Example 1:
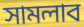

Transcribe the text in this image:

সামলাব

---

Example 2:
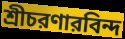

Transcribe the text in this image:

শ্রীচরণারবিন্দ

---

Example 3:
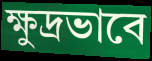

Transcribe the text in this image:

ক্ষুদ্রভাবে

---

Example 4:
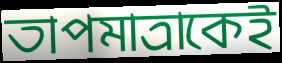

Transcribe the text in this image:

তাপমাত্রাকেই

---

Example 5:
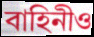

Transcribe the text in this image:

বাহিনীও